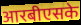
आरबीएसके